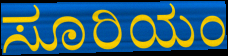
ಸೂರಿಯಂ